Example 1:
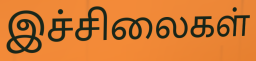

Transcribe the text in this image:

இச்சிலைகள்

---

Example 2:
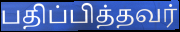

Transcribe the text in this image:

பதிப்பித்தவர்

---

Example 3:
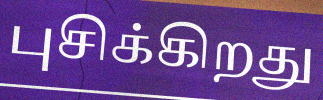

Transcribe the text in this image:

புசிக்கிறது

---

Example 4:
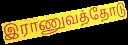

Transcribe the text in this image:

இராணுவத்தோடு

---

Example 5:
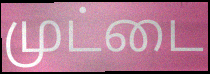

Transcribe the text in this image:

முட்டை